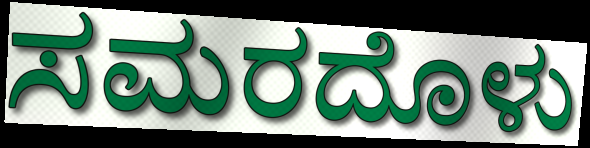
ಸಮರದೊಳು